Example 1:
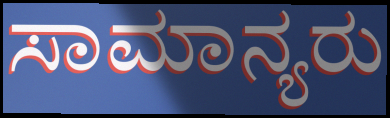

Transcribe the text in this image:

ಸಾಮಾನ್ಯರು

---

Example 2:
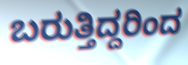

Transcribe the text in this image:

ಬರುತ್ತಿದ್ದರಿಂದ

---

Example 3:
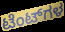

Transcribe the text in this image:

ಟೆಂಟ್‌ಗಳ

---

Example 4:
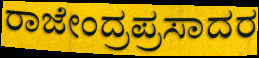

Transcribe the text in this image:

ರಾಜೇಂದ್ರಪ್ರಸಾದರ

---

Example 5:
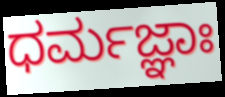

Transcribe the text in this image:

ಧರ್ಮಜ್ಞಾಃ